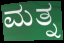
ಮತ್ನ